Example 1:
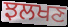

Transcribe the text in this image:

ਝਲਖਣ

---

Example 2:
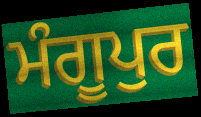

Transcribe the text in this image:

ਮੰਗੂਪੁਰ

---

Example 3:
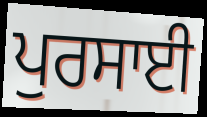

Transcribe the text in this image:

ਪੁਰਸਾਈ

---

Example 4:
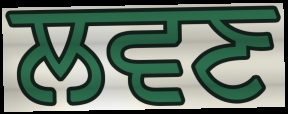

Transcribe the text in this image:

ਲਵਣ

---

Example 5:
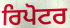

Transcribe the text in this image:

ਰਿਪੋਟਰ